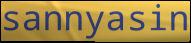
sannyasin